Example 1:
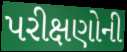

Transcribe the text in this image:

પરીક્ષણોની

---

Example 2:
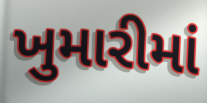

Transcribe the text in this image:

ખુમારીમાં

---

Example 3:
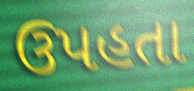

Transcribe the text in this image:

ઉપહતા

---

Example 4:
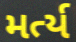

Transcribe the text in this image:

મર્ત્ય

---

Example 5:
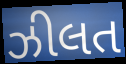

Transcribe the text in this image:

ઝીલત